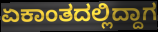
ಏಕಾಂತದಲ್ಲಿದ್ದಾಗ